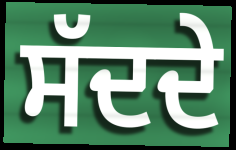
ਸੱਦਦੇ